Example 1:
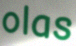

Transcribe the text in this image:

olas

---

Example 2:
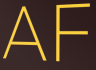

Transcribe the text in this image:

AF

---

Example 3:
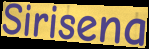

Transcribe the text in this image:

Sirisena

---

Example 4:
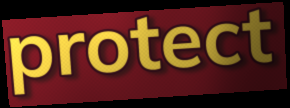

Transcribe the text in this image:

protect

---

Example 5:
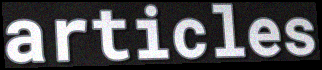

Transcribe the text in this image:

articles